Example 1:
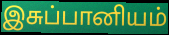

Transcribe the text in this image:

இசுப்பானியம்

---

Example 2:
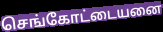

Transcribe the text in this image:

செங்கோட்டையனை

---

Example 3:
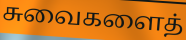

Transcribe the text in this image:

சுவைகளைத்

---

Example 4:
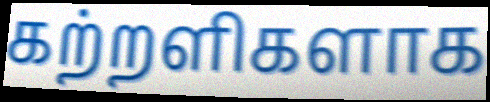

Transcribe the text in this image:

கற்றளிகளாக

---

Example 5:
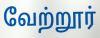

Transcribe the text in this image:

வேற்றூர்